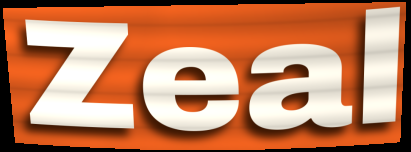
Zeal